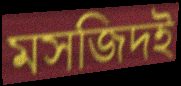
মসজিদই